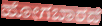
ಹೋಗಬಾರದೆ